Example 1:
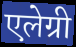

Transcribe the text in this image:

एलेग्री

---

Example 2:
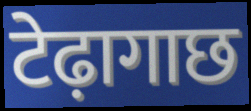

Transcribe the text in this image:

टेढ़ागाछ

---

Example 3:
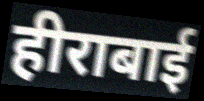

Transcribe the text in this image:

हीराबाई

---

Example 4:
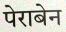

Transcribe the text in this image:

पेराबेन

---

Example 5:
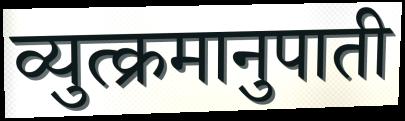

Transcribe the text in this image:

व्युत्क्रमानुपाती